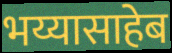
भय्यासाहेब